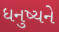
ધનુષ્યને